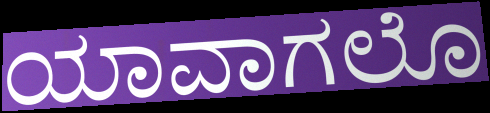
ಯಾವಾಗಲೊ